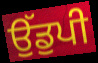
ਉੱਡੁਪੀ